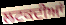
ਲਟਕਦੀਆਂ